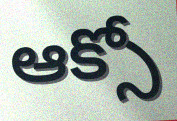
ఆక్సో